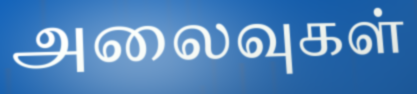
அலைவுகள்